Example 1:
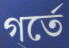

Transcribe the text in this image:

গর্তে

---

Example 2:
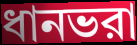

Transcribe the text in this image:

ধানভরা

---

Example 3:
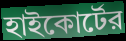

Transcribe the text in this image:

হাইকোর্টের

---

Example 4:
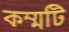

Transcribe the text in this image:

কম্মটি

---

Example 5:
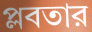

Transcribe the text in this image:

প্লবতার